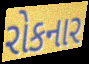
રોકનાર